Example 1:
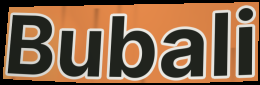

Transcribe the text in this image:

Bubali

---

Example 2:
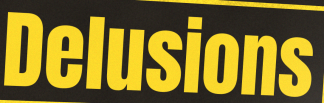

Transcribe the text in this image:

Delusions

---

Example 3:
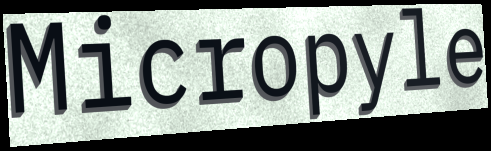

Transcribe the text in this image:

Micropyle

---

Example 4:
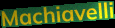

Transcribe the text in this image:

Machiavelli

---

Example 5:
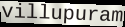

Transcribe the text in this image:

villupuram